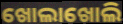
ଖୋଲାଖୋଲି